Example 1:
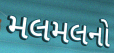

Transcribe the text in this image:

મલમલનો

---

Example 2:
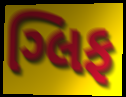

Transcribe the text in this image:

ગ્લિફ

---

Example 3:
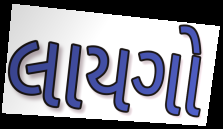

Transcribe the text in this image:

લાયગો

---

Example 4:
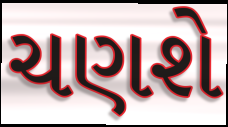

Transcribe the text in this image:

ચણશે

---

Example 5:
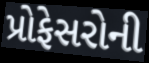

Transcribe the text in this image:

પ્રોફેસરોની